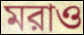
মরাও